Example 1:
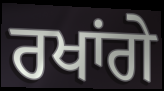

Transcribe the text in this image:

ਰਖਾਂਗੇ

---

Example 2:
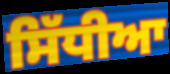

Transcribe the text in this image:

ਸਿੱਧੀਆ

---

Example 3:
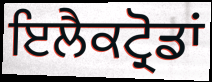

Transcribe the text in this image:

ਇਲੈਕਟ੍ਰੋਡਾਂ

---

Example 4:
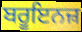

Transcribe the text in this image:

ਬਰੂਇਨਜ਼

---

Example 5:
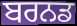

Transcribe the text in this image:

ਬਰਨਡ